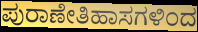
ಪುರಾಣೇತಿಹಾಸಗಳಿಂದ